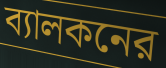
ব্যালকনের